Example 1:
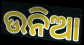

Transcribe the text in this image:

ଉନିଆ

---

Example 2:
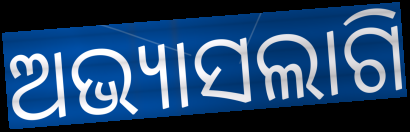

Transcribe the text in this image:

ଅଭ୍ୟାସଲାଗି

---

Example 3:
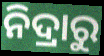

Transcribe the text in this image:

ନିଦ୍ରାରୁ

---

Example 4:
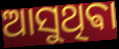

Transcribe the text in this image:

ଆସୁଥିଵା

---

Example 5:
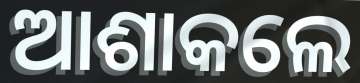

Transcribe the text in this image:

ଆଶାକଲେ